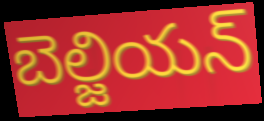
బెల్జియన్